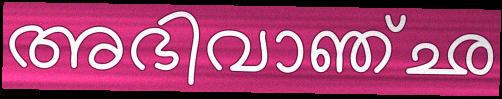
അഭിവാഞ്ഛ